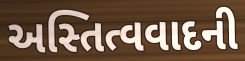
અસ્તિત્વવાદની